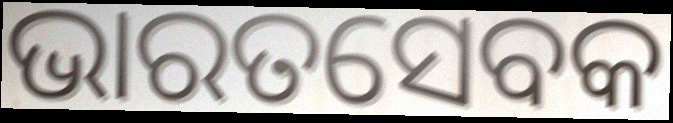
ଭାରତସେବକ